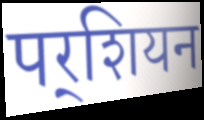
पर्शियन